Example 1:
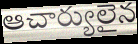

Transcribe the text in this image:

ఆచార్యులైన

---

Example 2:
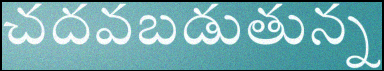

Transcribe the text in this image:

చదవబడుతున్న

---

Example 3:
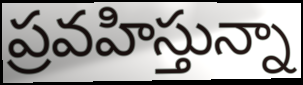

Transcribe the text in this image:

ప్రవహిస్తున్నా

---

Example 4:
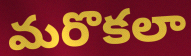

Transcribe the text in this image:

మరొకలా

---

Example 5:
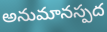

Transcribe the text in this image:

అనుమానస్పద